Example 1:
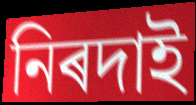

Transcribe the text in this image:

নিৰদাই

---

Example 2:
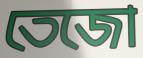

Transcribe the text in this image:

তেজো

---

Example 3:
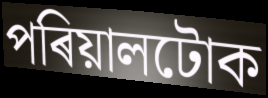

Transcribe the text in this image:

পৰিয়ালটোক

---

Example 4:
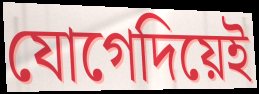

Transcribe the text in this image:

যোগেদিয়েই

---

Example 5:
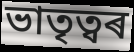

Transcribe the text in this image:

ভাতৃত্বৰ